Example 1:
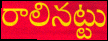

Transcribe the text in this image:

రాలినట్టు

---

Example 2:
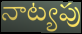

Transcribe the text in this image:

నాట్యపు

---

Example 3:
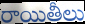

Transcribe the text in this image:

రాయితీలు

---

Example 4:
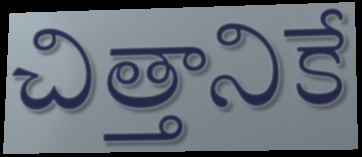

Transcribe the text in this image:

చిత్తానికే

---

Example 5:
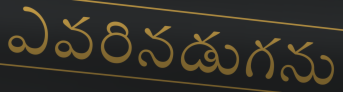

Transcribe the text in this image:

ఎవరినడుగను